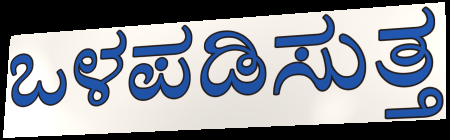
ಒಳಪಡಿಸುತ್ತ